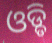
ଓଡ୍ଡି